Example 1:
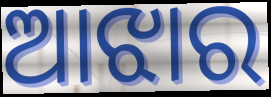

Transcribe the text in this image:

ଆଝାର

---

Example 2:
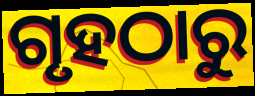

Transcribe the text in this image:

ଗୃହଠାରୁ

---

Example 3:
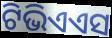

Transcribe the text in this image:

ଟିଭିଏଏସ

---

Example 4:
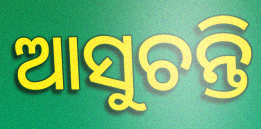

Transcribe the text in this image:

ଆସୁଚନ୍ତି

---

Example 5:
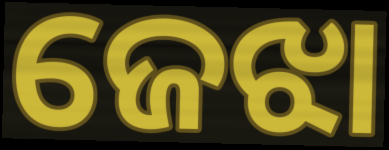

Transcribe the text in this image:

ଜେଝା